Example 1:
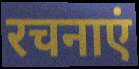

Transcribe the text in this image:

रचनाएं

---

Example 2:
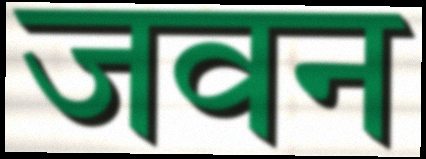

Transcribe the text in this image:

जवन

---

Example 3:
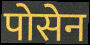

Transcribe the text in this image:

पोसेन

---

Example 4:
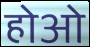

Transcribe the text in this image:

होओ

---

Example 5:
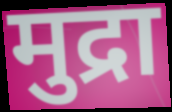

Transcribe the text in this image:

मुद्रा